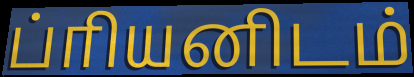
ப்ரியனிடம்